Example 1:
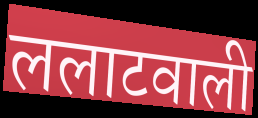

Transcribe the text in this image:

ललाटवाली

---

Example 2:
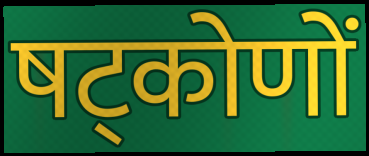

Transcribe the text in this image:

षट्कोणों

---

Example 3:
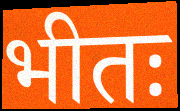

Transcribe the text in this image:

भीतः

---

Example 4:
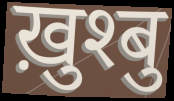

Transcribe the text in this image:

ख़ुश्बु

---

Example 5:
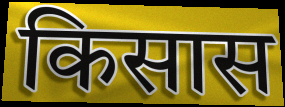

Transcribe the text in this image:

किसास